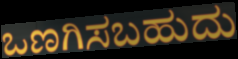
ಒಣಗಿಸಬಹುದು